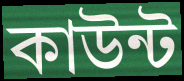
কাউন্ট